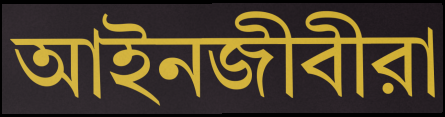
আইনজীবীরা